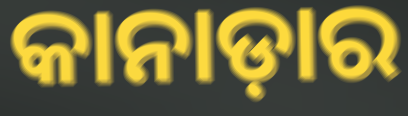
କାନାଡ଼ାର